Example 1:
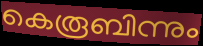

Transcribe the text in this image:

കെരൂബിന്നും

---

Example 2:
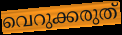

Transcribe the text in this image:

വെറുക്കരുത്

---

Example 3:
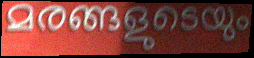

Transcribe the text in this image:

മരങ്ങളുടെയും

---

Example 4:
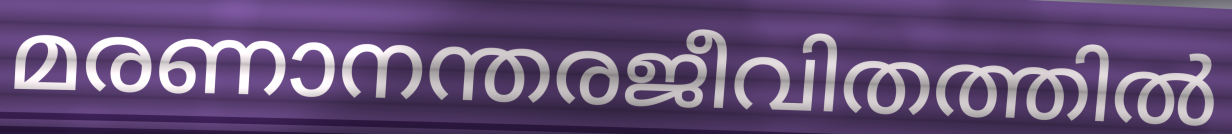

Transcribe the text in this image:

മരണാനന്തരജീവിതത്തിൽ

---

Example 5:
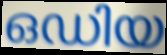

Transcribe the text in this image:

ഒഡിയ